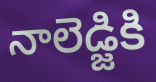
నాలెడ్జికి